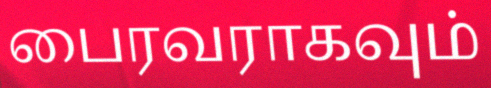
பைரவராகவும்